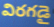
విరగడై